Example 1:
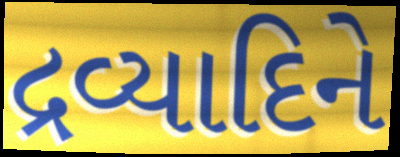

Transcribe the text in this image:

દ્રવ્યાદિને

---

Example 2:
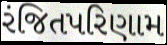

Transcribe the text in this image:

રંજિતપરિણામ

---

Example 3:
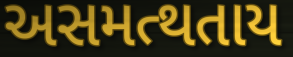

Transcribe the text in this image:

અસમત્થતાય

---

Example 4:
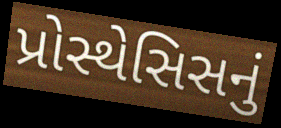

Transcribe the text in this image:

પ્રોસ્થેસિસનું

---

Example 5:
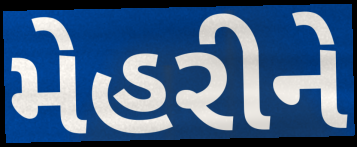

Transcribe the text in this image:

મેહરીને